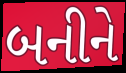
બનીને